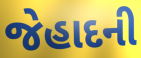
જેહાદની